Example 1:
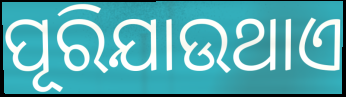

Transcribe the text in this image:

ପୂରିଯାଉଥାଏ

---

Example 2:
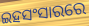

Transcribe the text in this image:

ଇହସଂସାରରେ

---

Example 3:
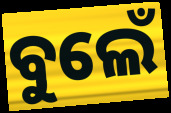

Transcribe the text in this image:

ବୁଲେଁ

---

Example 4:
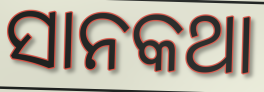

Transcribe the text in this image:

ସାନକଥା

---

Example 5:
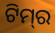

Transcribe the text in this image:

ଟିମ୍‌ର